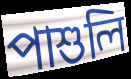
পাশুলি